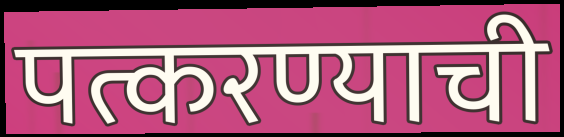
पत्करण्याची